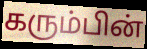
கரும்பின்